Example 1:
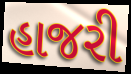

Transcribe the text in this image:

હાજરી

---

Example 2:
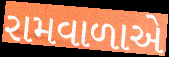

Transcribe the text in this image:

રામવાળાએ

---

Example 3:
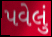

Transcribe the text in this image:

પવેલું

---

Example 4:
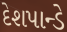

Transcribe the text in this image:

દેશપાન્ડે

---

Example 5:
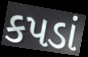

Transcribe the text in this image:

કપડાં